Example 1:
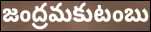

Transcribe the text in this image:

జంద్రమకుటంబు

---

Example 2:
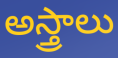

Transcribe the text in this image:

అస్త్రాలు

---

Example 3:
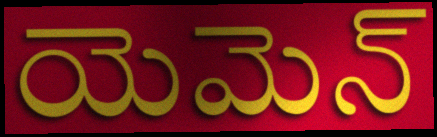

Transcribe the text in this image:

యెమెన్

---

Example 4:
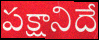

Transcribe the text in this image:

పక్షానిదే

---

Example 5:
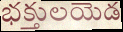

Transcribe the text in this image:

భక్తులయెడ